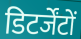
डिटर्जेंटों